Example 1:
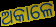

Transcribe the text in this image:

ଅକାଳେ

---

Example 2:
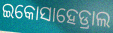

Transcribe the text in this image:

ଇକୋସାହେଡ୍ରାଲ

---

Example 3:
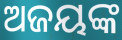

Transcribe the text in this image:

ଅଜୟଙ୍କ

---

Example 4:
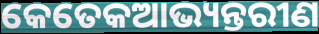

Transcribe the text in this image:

କେତେକଆଭ୍ୟନ୍ତରୀଣ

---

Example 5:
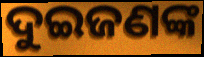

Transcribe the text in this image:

ଦୁଇଜଣଙ୍କ